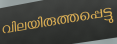
വിലയിരുത്തപ്പെട്ടു